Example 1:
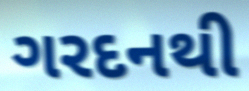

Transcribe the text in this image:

ગરદનથી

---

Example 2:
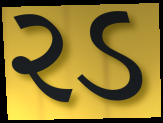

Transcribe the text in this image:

રડ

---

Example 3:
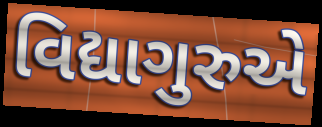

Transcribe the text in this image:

વિદ્યાગુરુએ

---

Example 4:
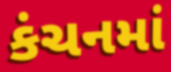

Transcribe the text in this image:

કંચનમાં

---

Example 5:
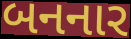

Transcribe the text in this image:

બનનાર